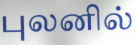
புலனில்